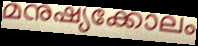
മനുഷ്യക്കോലം